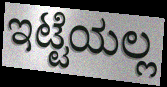
ಇಟ್ಟೆಯಲ್ಲ